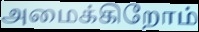
அமைக்கிறோம்